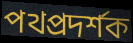
পথপ্রদর্শক